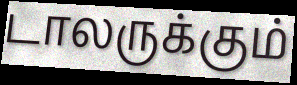
டாலருக்கும்